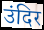
उंदिर